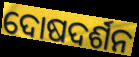
ଦୋଷଦର୍ଶନ